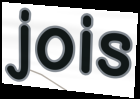
jois